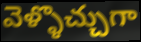
వెళ్ళొచ్చుగా